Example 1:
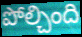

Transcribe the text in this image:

పోల్చింది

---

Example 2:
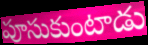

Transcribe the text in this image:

పూసుకుంటాడు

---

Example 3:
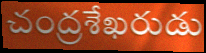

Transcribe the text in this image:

చంద్రశేఖరుడు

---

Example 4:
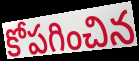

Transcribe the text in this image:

కోపగించిన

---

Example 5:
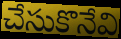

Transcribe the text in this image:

చేసుకొనేవి